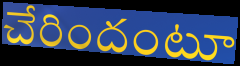
చేరిందంటూ